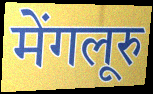
मेंगलूरु